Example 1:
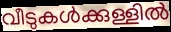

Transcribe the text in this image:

വീടുകൾക്കുള്ളിൽ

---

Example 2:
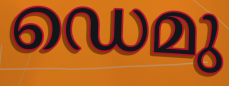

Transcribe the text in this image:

ഡെമു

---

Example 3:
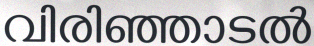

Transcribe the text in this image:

വിരിഞ്ഞാടൽ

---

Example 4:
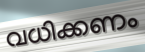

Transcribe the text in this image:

വധിക്കണം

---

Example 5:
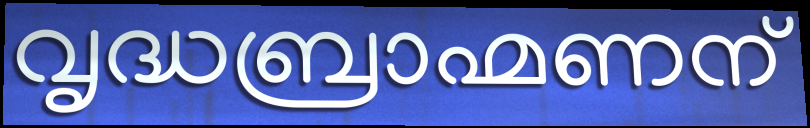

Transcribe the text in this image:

വൃദ്ധബ്രാഹ്മണന്